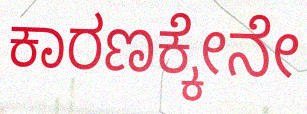
ಕಾರಣಕ್ಕೇನೇ